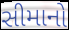
સીમાનો